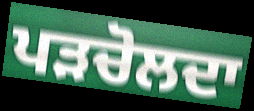
ਪੜਚੋਲਦਾ